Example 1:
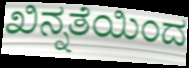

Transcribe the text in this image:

ಖಿನ್ನತೆಯಿಂದ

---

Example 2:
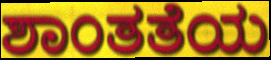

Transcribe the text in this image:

ಶಾಂತತೆಯ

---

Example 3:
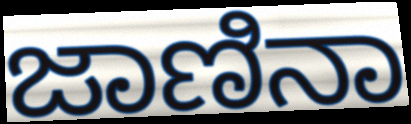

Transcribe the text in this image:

ಜಾಣಿನಾ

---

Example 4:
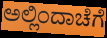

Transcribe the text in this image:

ಅಲ್ಲಿಂದಾಚೆಗೆ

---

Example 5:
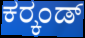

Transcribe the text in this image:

ಕರ್‍ಕಂಡ್